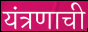
यंत्रणाची